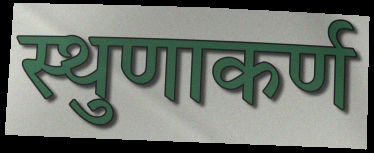
स्थुणाकर्ण